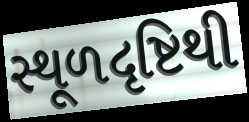
સ્થૂળદૃષ્ટિથી